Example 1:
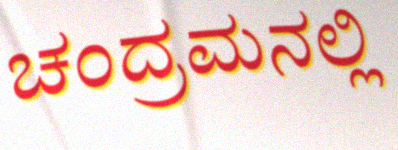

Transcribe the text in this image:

ಚಂದ್ರಮನಲ್ಲಿ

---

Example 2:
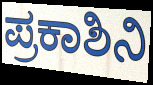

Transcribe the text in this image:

ಪ್ರಕಾಶಿನಿ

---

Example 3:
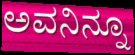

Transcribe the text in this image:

ಅವನಿನ್ನೂ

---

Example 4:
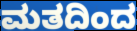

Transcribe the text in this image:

ಮತದಿಂದ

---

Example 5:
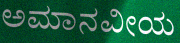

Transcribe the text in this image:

ಅಮಾನವೀಯ